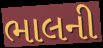
ભાલની